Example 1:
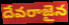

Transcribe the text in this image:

దేవరాజైన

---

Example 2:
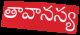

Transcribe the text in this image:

తావానస్య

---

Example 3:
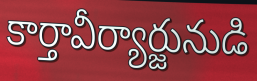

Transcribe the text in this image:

కార్తావీర్యార్జునుడి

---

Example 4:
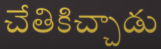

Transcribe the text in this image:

చేతికిచ్చాడు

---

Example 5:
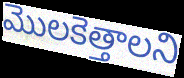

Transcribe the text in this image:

మొలకెత్తాలని